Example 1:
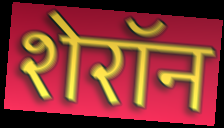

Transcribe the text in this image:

शेरॉन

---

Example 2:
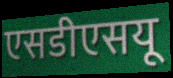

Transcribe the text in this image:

एसडीएसयू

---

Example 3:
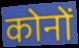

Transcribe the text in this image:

कोनों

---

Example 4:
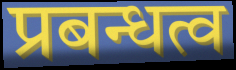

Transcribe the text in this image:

प्रबन्धत्व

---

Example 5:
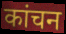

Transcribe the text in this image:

कांचन